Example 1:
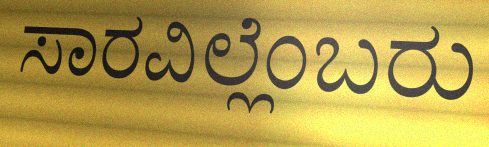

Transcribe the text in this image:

ಸಾರವಿಲ್ಲೆಂಬರು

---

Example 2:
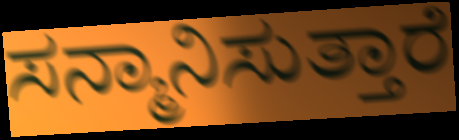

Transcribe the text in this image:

ಸನ್ಮಾನಿಸುತ್ತಾರೆ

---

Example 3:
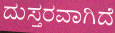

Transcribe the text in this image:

ದುಸ್ತರವಾಗಿದೆ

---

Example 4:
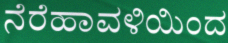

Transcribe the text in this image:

ನೆರೆಹಾವಳಿಯಿಂದ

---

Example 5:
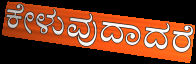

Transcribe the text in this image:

ಕೇಳುವುದಾದರೆ